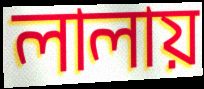
লালায়